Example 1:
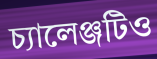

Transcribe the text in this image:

চ্যালেঞ্জটিও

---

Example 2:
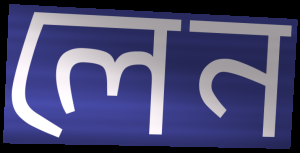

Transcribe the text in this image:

লেন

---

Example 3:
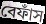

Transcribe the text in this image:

বেফাঁস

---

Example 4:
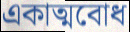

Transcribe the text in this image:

একাত্মবোধ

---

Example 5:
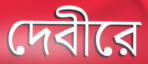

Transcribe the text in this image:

দেবীরে